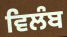
ਵਿਲੰਬ